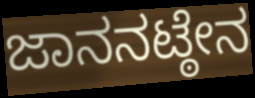
ಜಾನನಟ್ಠೇನ